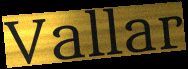
Vallar